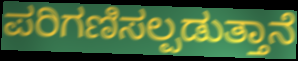
ಪರಿಗಣಿಸಲ್ಪಡುತ್ತಾನೆ